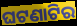
ଘଟଣାଟିର